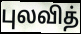
புலவித்